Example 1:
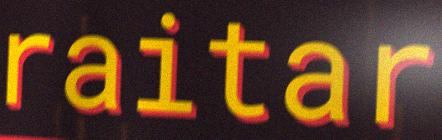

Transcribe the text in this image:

raitar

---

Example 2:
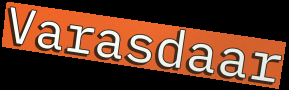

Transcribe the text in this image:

Varasdaar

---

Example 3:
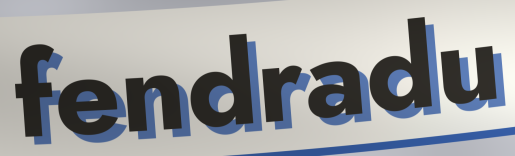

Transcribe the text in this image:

fendradu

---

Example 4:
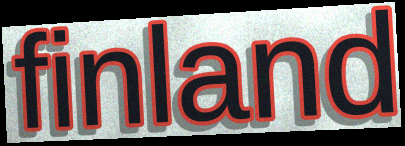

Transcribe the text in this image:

finland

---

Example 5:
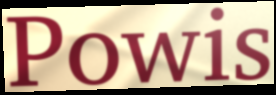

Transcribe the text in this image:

Powis